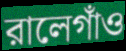
রালেগাঁও